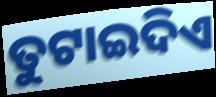
ତୁଟାଇଦିଏ